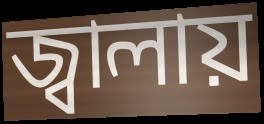
জ্বালায়